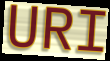
URI